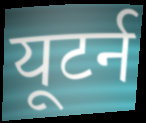
यूटर्न